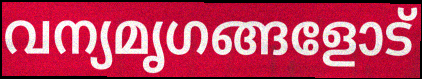
വന്യമൃഗങ്ങളോട്